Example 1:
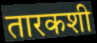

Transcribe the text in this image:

तारकशी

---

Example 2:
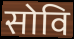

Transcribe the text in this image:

सोवि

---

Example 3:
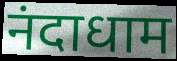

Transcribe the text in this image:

नंदाधाम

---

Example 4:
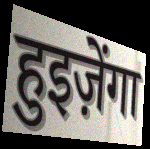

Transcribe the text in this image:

हुइज़ेंगा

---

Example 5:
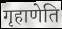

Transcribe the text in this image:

गृहाणेति